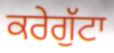
ਕਰੇਗੁੱਟਾ